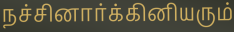
நச்சினார்க்கினியரும்